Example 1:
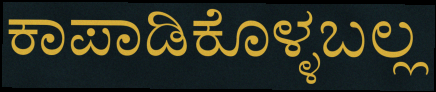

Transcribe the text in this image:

ಕಾಪಾಡಿಕೊಳ್ಳಬಲ್ಲ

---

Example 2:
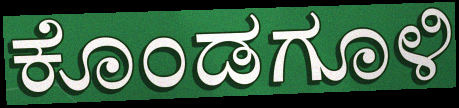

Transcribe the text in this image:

ಕೊಂಡಗೂಳಿ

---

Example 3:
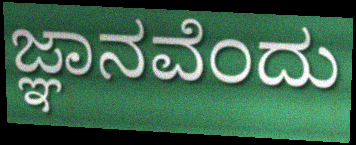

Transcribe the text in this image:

ಜ್ಞಾನವೆಂದು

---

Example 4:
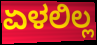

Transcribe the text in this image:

ಏಳಲಿಲ್ಲ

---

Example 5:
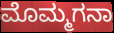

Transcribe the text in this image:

ಮೊಮ್ಮಗನಾ